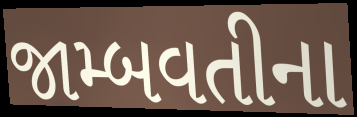
જામ્બવતીના